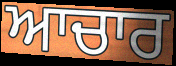
ਆਚਾਰ